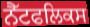
ਨੈੱਟਫਲਿਕਸ